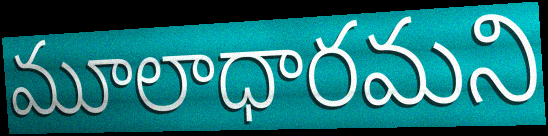
మూలాధారమని